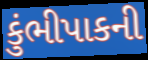
કુંભીપાકની